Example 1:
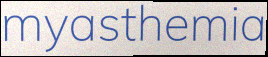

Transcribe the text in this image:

myasthemia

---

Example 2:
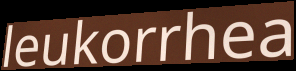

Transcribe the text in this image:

leukorrhea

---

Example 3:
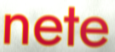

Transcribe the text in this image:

nete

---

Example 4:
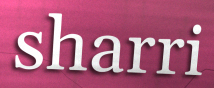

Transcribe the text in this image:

sharri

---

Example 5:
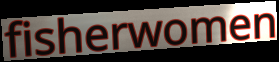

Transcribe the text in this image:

fisherwomen